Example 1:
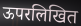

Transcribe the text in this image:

ऊपरलिखित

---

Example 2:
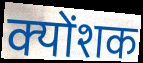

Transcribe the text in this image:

क्योंशक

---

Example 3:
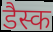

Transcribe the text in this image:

डैस्क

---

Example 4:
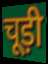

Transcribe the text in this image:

चूड़ी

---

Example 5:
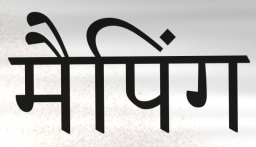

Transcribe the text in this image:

मैपिंग